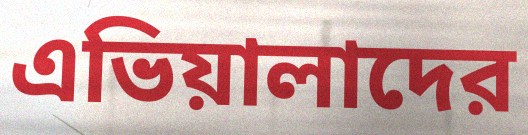
এভিয়ালাদের